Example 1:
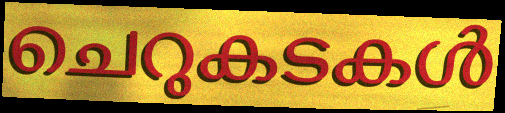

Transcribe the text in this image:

ചെറുകടകൾ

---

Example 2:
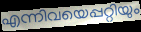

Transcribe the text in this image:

എന്നിവയെപ്പറ്റിയും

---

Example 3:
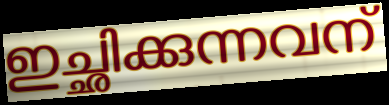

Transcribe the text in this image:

ഇച്ഛിക്കുന്നവന്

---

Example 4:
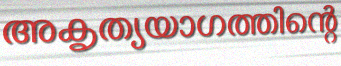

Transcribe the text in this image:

അകൃത്യയാഗത്തിന്റെ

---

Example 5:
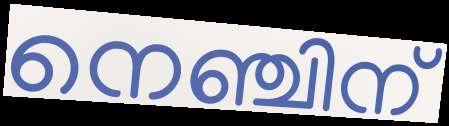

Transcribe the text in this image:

നെഞ്ചിന്